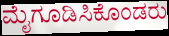
ಮೈಗೂಡಿಸಿಕೊಂಡರು